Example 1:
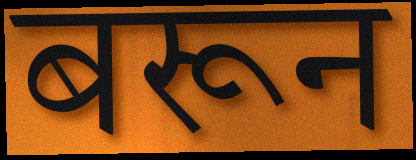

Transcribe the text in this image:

बरून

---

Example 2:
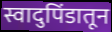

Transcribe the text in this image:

स्वादुपिंडातून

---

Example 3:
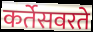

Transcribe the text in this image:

कर्तेसवरते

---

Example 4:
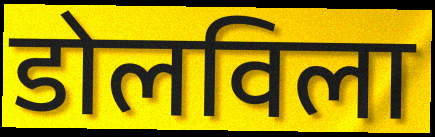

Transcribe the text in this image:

डोलविला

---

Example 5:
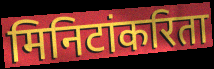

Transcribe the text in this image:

मिनिटांकरिता